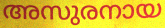
അസുരനായ